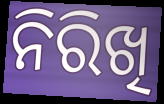
ନିରିଖି